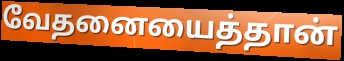
வேதனையைத்தான்